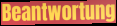
Beantwortung